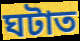
ঘটাত